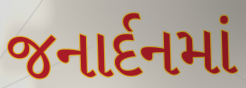
જનાર્દનમાં